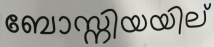
ബോസ്നിയയില്